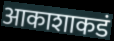
आकाशाकडं